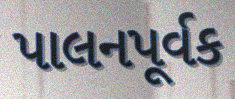
પાલનપૂર્વક